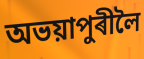
অভয়াপুৰীলৈ